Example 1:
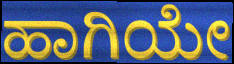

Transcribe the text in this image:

ಹಾಗಿಯೇ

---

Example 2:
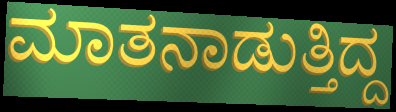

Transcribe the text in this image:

ಮಾತನಾಡುತ್ತಿದ್ದ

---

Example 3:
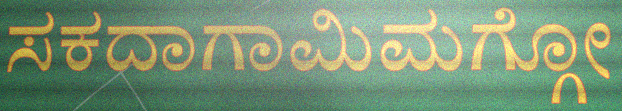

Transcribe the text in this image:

ಸಕದಾಗಾಮಿಮಗ್ಗೋ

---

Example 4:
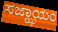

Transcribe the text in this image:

ಸಜ್ಝಾಯಂ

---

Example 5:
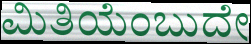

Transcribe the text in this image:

ಮಿತಿಯೆಂಬುದೇ